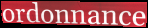
ordonnance